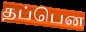
தப்பென